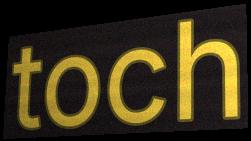
toch